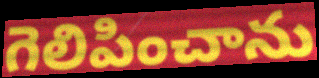
గెలిపించాను